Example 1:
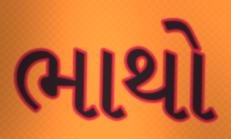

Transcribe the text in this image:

ભાથો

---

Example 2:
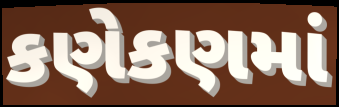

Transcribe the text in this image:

કણેકણમાં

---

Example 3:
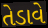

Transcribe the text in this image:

તેડાવે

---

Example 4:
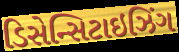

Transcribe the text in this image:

ડિસેન્સિટાઇઝિંગ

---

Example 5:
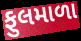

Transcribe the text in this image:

ફુલમાળા